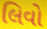
લિવો